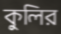
কুলির